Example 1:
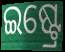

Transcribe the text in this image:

ଇଷ୍ଟ୍ରେ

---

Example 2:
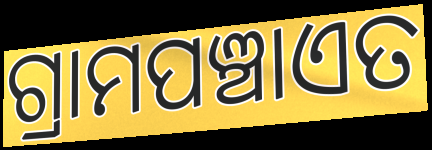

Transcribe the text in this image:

ଗ୍ରାମପଞ୍ଚାଏତ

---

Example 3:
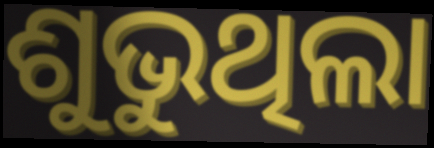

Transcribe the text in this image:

ଶୁଭୁଥିଲା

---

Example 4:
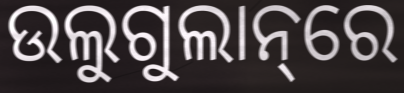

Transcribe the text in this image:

ଉଲୁଗୁଲାନ୍‌ରେ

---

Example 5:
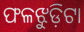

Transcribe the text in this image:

ଫଳଝୁଡ଼ିଟା